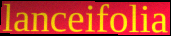
lanceifolia